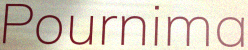
Pournima